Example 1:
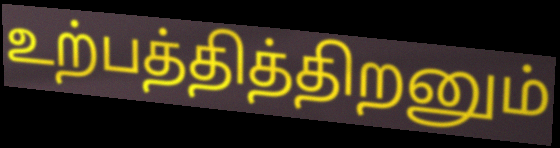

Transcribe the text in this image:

உற்பத்தித்திறனும்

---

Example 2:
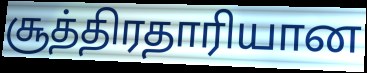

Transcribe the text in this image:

சூத்திரதாரியான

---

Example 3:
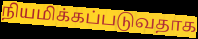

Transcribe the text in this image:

நியமிக்கப்படுவதாக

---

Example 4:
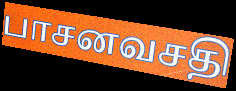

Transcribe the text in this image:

பாசனவசதி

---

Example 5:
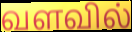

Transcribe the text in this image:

வளவில்